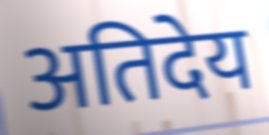
अतिदेय